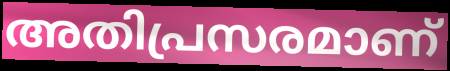
അതിപ്രസരമാണ്